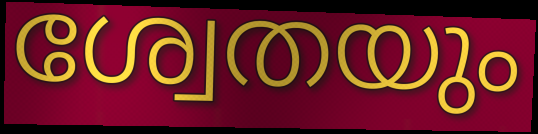
ശ്വേതയും